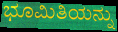
ಭೂಮಿತಿಯನ್ನು